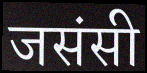
जसंसी